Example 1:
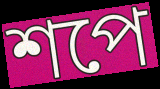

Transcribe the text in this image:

শপে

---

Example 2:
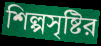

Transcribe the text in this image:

শিল্পসৃষ্টির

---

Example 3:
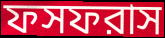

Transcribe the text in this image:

ফসফরাস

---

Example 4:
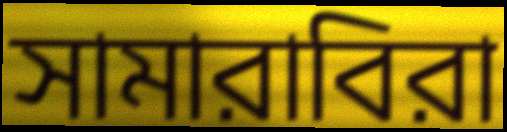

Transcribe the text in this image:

সামারাবিরা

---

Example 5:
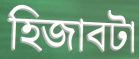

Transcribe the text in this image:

হিজাবটা